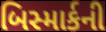
બિસ્માર્કની